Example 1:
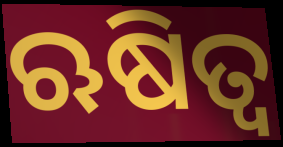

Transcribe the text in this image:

ଋଷିତ୍ୱ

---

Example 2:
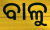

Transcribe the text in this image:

ବାଳୁ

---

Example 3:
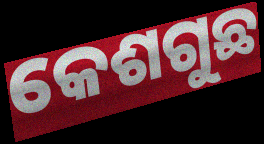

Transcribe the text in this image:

କେଶଗୁଛ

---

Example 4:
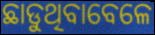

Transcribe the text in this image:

ଛାଡୁଥିବାବେଳେ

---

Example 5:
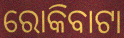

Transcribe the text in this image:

ରୋକିବାଟା